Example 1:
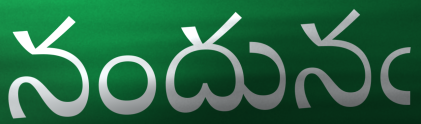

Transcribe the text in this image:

నందునఁ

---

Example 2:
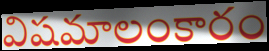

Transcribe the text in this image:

విషమాలంకారం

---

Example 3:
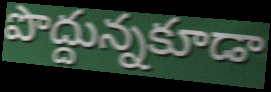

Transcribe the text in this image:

పొద్దున్నకూడా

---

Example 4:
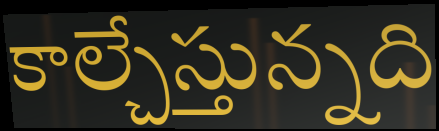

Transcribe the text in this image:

కాల్చేస్తున్నది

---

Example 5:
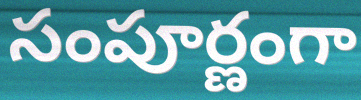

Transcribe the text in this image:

సంపూర్ణంగా